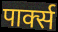
पार्क्‍स